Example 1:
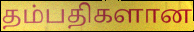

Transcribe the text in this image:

தம்பதிகளான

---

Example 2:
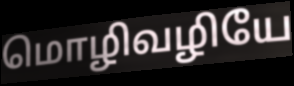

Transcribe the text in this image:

மொழிவழியே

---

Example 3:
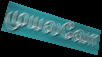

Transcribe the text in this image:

முயலவோ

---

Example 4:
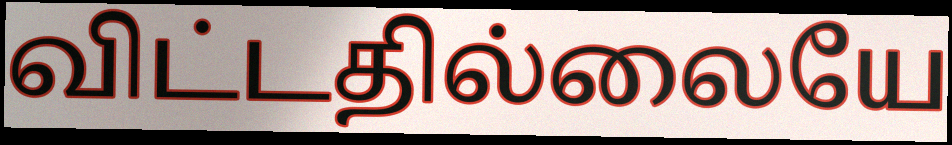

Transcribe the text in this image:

விட்டதில்லையே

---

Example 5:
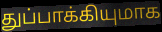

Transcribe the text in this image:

துப்பாக்கியுமாக